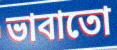
ভাবাতো